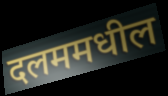
दलममधील